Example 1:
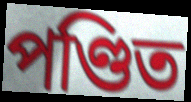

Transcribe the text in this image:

পণ্ডিত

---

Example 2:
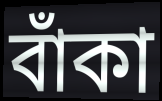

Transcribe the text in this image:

বাঁকা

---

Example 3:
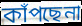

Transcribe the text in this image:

কাঁপছেনা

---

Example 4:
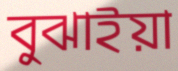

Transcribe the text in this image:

বুঝাইয়া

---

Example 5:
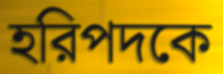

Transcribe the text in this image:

হরিপদকে